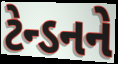
ટેન્ડનને